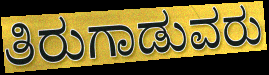
ತಿರುಗಾಡುವರು